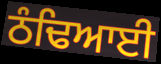
ਠੰਢਿਆਈ